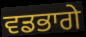
ਵਡਭਾਗੇ